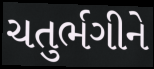
ચતુર્ભગીને